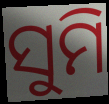
ସୁମି